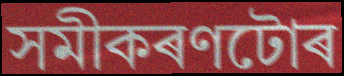
সমীকৰণটোৰ